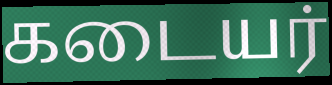
கடையர்